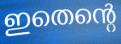
ഇതെന്റെ